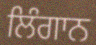
ਲਿੰਗਾਨ